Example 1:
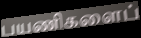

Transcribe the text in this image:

பயணிகளைப்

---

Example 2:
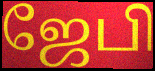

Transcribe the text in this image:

ஜேபி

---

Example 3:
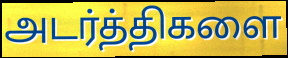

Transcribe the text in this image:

அடர்த்திகளை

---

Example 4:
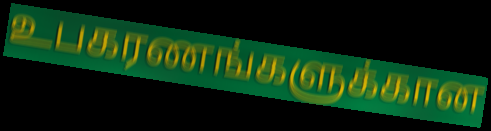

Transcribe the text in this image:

உபகரணங்களுக்கான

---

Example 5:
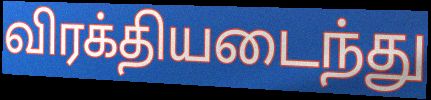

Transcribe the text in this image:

விரக்தியடைந்து